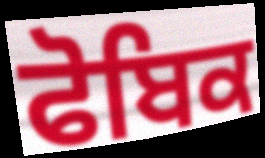
ਫੋਬਿਕ